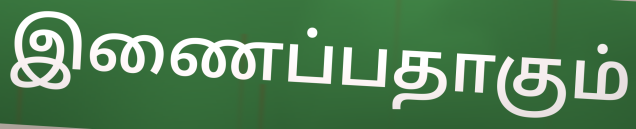
இணைப்பதாகும்